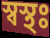
স্বস্থঃ